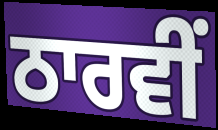
ਠਾਰਵੀਂ